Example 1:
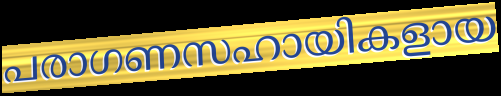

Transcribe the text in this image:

പരാഗണസഹായികളായ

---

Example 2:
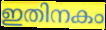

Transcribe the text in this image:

ഇതിനകം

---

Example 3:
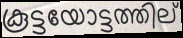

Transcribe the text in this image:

കൂട്ടയോട്ടത്തില്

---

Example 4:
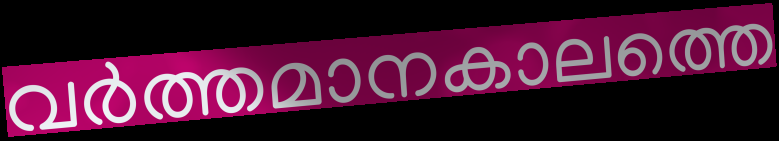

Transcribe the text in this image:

വർത്തമാനകാലത്തെ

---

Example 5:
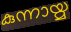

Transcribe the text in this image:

കുന്നായ്മ